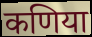
कणिया